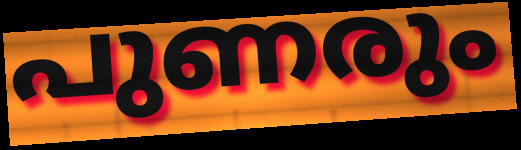
പുണരും